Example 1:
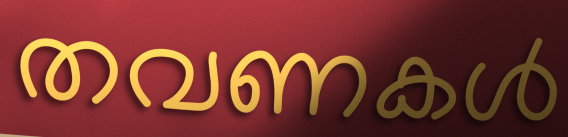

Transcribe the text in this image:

തവണകൾ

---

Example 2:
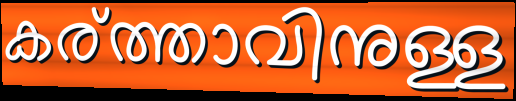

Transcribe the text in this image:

കര്ത്താവിനുള്ള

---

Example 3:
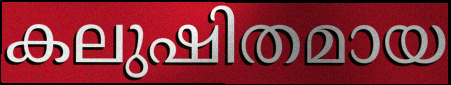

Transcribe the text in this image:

കലുഷിതമായ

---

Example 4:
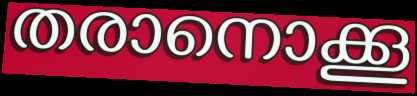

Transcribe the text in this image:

തരാനൊക്കൂ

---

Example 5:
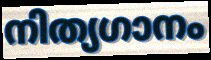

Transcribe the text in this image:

നിത്യഗാനം